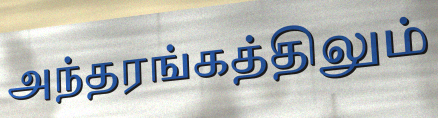
அந்தரங்கத்திலும்